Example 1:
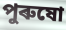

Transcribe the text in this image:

পুৰুষো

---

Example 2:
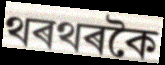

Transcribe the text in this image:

থৰথৰকৈ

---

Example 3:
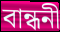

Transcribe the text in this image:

বান্ধনী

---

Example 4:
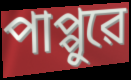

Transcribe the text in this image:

পাপ্পুৱে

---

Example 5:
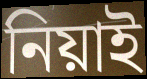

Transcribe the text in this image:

নিয়াই